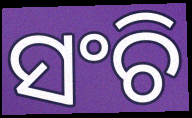
ସଂଚି